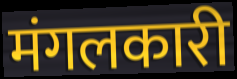
मंगलकारी